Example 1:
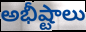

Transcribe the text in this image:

అభీష్టాలు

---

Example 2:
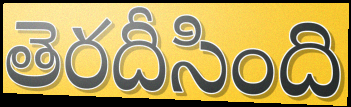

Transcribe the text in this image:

తెరదీసింది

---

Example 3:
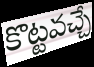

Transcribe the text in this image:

కొట్టవచ్చే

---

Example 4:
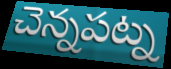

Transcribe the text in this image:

చెన్నపట్న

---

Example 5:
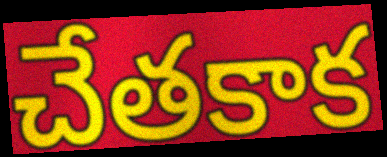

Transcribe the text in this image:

చేతకాక